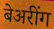
बेअरींग